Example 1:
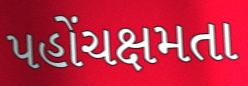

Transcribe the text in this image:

પહોંચક્ષમતા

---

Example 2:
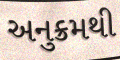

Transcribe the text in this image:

અનુક્રમથી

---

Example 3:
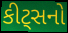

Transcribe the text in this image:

કીટ્સનો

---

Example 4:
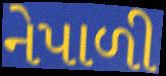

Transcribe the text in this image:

નેપાળી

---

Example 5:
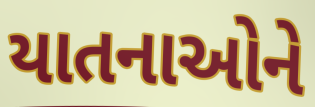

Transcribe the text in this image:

યાતનાઓને